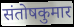
संतोषकुमार